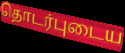
தொடர்புடைய